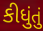
કીધુંતું